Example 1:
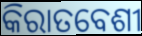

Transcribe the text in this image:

କିରାତବେଶୀ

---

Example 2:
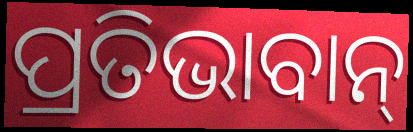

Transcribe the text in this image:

ପ୍ରତିଭାବାନ୍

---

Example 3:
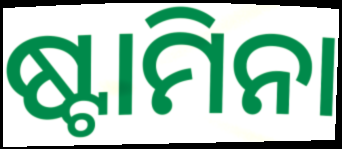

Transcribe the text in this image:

ଷ୍ଟାମିନା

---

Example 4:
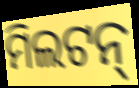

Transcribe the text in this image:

ମିଲଟନ୍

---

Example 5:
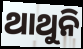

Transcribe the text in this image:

ଥାଥୁନି